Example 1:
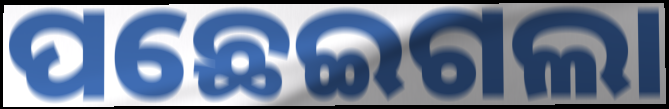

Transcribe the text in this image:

ପଛେଇଗଲା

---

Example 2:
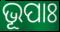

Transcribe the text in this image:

ଭୂପାଃ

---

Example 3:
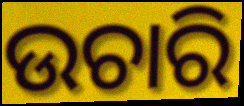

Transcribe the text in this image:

ଉଚାରି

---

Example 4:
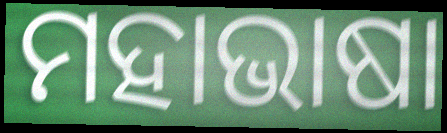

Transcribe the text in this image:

ମହାଭାଷା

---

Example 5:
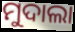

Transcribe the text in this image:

ମୁଦାଲା